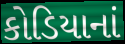
કોડિયાનાં